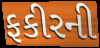
ફકીરની